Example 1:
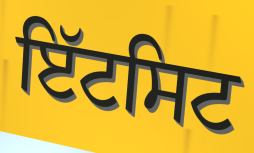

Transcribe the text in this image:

ਇੱਟਸਿਟ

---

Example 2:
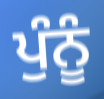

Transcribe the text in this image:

ਪੁੰਨੂੰ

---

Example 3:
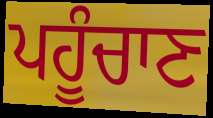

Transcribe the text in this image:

ਪਹੂੰਚਾਣ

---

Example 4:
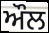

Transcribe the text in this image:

ਔਲ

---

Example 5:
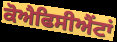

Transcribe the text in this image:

ਕੋਐਫਿਸੀਐਂਟਾਂ